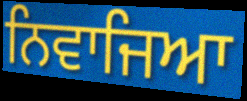
ਨਿਵਾਜਿਆ